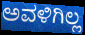
ಅವಳಿಗಿಲ್ಲ